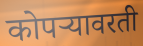
कोपऱ्यावरती